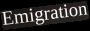
Emigration